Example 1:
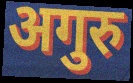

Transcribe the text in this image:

अगुरु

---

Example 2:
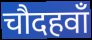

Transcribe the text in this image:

चौदहवाँ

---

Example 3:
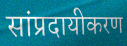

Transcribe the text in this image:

सांप्रदायीकरण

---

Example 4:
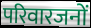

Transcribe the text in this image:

परिवारजनों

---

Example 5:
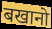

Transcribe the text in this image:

बखानो